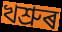
খশ্ৰুৰ